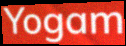
Yogam